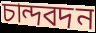
চান্দবদন